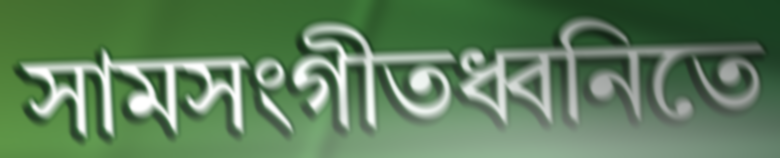
সামসংগীতধ্বনিতে